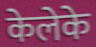
केलेके